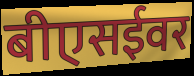
बीएसईवर